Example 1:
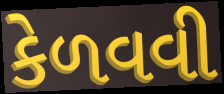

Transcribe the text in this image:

કેળવવી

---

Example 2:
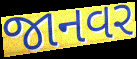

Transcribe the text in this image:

જાનવર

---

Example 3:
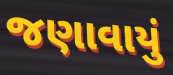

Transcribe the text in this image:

જણાવાયું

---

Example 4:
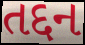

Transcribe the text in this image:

તદ્દન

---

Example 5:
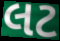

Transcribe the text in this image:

લટ